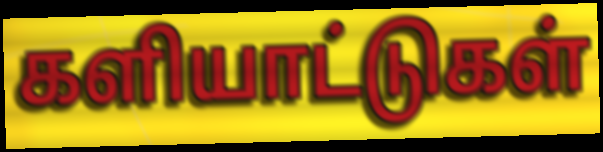
களியாட்டுகள்